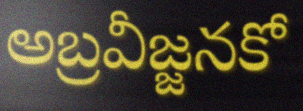
అబ్రవీజ్జనకో